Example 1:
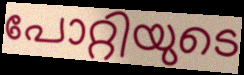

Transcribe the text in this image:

പോറ്റിയുടെ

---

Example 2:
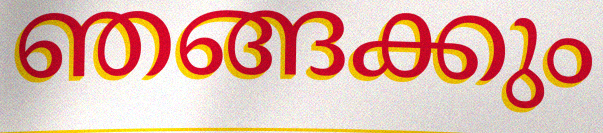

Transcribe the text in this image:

ഞങ്ങക്കും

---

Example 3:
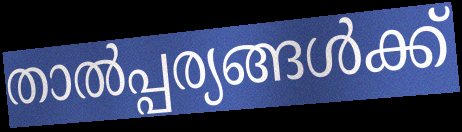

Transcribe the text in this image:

താൽപ്പര്യങ്ങൾക്ക്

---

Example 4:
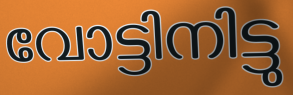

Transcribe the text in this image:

വോട്ടിനിട്ടു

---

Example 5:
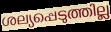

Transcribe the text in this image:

ശല്യപ്പെടുത്തില്ല